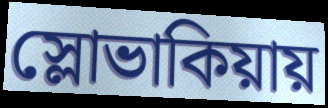
স্লোভাকিয়ায়